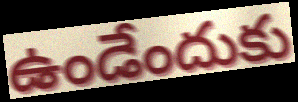
ఉండేందుకు